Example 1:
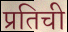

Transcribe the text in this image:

प्रतिची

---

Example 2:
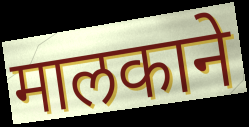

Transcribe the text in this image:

मालकाने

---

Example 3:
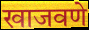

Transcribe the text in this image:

खाजवणे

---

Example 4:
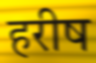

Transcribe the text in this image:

हरीष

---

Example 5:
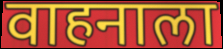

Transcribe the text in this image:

वाहनाला